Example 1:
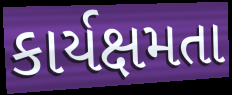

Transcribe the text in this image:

કાર્યક્ષમતા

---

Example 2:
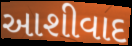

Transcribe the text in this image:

આશીવાદ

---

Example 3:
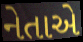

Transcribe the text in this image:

નેતાએ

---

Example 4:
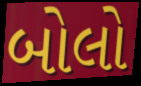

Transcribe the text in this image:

બોલો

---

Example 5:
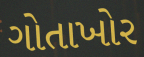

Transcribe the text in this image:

ગોતાખોર